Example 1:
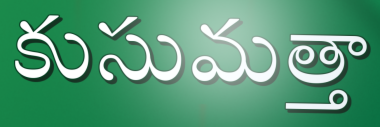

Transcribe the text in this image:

కుసుమత్తా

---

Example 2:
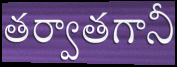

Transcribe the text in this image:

తర్వాతగానీ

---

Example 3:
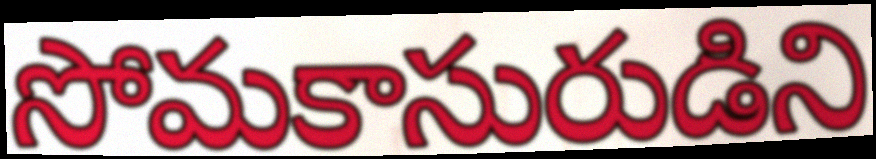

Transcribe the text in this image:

సోమకాసురుడిని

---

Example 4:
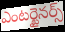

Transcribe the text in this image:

ఎంటర్టైనర్స్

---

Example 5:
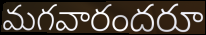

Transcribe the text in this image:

మగవారందరూ